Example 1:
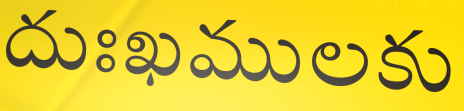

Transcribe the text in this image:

దుఃఖములకు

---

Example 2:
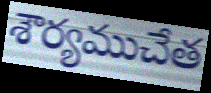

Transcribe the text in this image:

శౌర్యముచేత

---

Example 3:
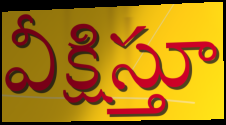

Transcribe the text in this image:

వీక్షిస్తూ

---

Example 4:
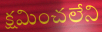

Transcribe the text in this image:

క్షమించలేని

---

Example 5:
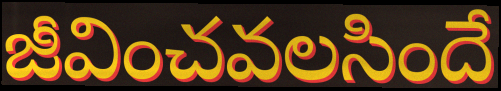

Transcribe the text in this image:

జీవించవలసిందే